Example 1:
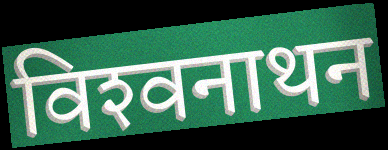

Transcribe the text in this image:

विश्वनाथन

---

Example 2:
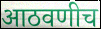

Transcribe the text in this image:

आठवणीच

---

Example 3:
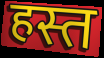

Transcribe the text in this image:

हस्त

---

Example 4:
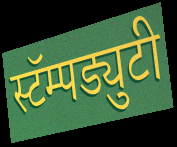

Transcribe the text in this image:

स्टॅम्पड्युटी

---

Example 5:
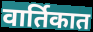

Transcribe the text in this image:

वार्तिकात